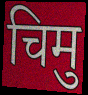
चिमु